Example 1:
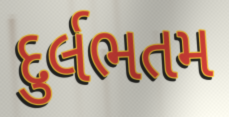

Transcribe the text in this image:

દુર્લભતમ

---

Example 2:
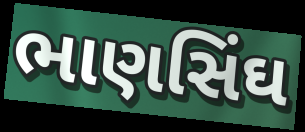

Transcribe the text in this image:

ભાણસિંઘ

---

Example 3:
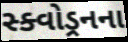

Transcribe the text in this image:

સ્ક્વોડ્રનના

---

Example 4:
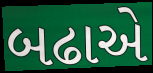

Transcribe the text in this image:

બઢાએ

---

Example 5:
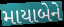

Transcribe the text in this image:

માયાબેને